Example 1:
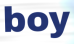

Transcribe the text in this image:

boy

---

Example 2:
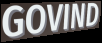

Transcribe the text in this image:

GOVIND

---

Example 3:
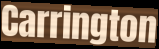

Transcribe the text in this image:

Carrington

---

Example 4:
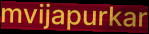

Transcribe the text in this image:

mvijapurkar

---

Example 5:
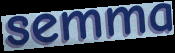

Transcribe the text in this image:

semma